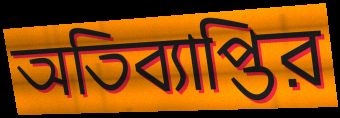
অতিব্যাপ্তির